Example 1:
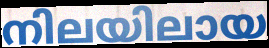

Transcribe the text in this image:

നിലയിലായ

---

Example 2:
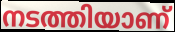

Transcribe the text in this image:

നടത്തിയാണ്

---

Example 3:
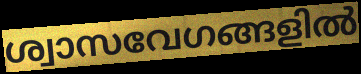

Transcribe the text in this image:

ശ്വാസവേഗങ്ങളിൽ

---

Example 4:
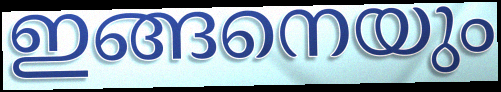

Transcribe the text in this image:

ഇങ്ങനെയും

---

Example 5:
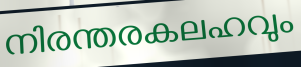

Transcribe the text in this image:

നിരന്തരകലഹവും